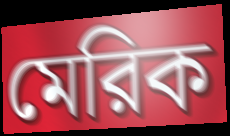
মেরিক